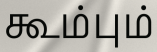
கூம்பும்